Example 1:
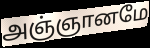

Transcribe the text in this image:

அஞ்ஞானமே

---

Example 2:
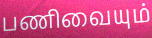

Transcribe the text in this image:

பணிவையும்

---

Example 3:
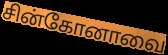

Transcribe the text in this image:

சின்கோனாவை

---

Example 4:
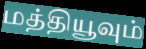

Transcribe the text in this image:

மத்தியூவும்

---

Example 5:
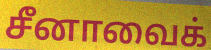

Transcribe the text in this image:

சீனாவைக்